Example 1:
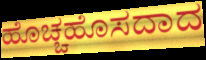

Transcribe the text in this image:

ಹೊಚ್ಚಹೊಸದಾದ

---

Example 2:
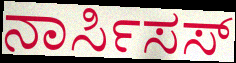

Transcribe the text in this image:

ನಾರ್ಸಿಸಸ್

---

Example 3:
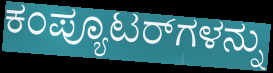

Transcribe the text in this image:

ಕಂಪ್ಯೂಟರ್‌ಗಳನ್ನು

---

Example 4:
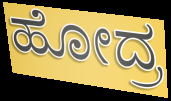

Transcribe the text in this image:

ಹೋದ್ರ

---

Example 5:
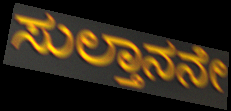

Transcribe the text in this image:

ಸುಲ್ತಾನನೇ